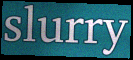
slurry